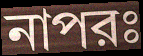
নাপরঃ